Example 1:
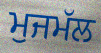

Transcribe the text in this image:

ਮੁਜਮੱਲ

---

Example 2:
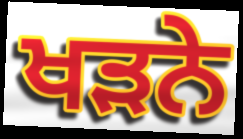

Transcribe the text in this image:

ਖੜਨੇ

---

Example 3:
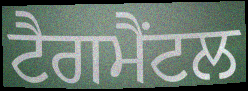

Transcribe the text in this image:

ਟੈਗਮੈਂਟਲ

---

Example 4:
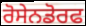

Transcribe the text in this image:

ਰੋਸੇਨਡੋਰਫ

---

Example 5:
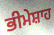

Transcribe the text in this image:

ਭੀਮੇਸ਼ਾਹ